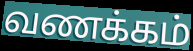
வணக்கம்